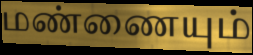
மண்ணையும்